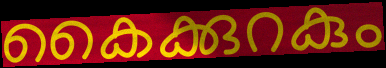
കൈക്കുറകും